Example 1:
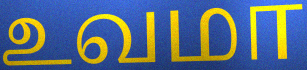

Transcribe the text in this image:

உவமா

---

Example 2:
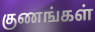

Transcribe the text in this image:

குணங்கள்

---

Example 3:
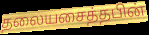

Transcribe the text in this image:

தலையசைத்தபின்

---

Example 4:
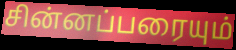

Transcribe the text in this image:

சின்னப்பரையும்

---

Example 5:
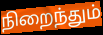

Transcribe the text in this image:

நிறைந்தும்